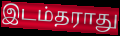
இடம்தராது